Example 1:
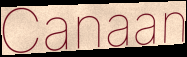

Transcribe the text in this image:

Canaan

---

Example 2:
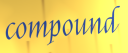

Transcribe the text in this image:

compound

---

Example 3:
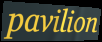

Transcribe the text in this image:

pavilion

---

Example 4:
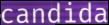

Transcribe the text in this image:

candida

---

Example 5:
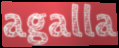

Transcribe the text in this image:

agalla